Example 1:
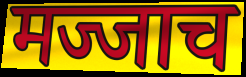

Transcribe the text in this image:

मज्जाच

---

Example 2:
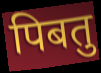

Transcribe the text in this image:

पिबतु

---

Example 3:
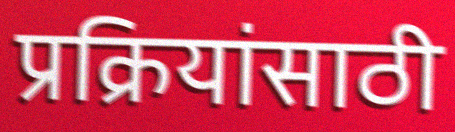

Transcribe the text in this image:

प्रक्रियांसाठी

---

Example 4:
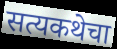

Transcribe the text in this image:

सत्यकथेचा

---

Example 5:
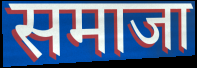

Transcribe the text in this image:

समाजा